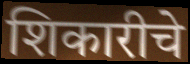
शिकारीचे